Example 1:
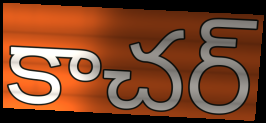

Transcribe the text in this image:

కాచర్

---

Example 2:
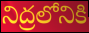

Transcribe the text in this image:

నిద్రలోనికి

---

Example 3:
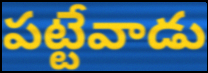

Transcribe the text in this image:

పట్టేవాడు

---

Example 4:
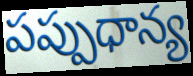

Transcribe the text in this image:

పప్పుధాన్య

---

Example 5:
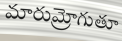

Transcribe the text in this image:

మారుమ్రోగుతూ